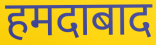
हमदाबाद